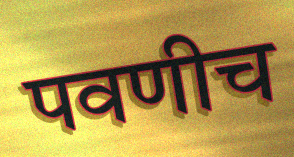
पवणीच